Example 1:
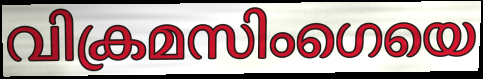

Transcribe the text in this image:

വിക്രമസിംഗെയെ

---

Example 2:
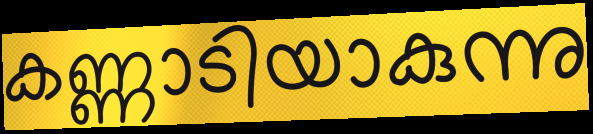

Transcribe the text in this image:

കണ്ണാടിയാകുന്നു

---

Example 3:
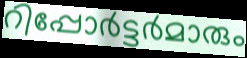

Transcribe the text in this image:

റിപ്പോർട്ടർമാരും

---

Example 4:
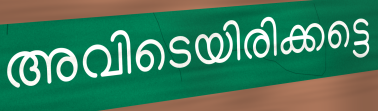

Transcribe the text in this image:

അവിടെയിരിക്കട്ടെ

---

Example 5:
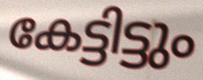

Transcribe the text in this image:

കേട്ടിട്ടും